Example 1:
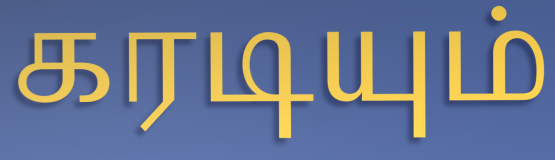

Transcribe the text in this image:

கரடியும்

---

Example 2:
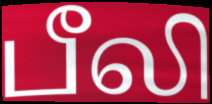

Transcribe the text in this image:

பீலி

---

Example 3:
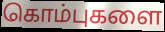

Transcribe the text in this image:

கொம்புகளை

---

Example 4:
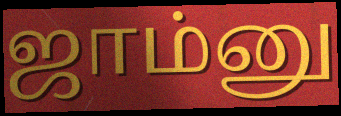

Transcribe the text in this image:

ஜாம்னு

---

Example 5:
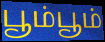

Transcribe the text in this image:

பூம்பூம்